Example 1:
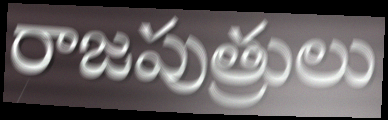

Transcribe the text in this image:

రాజపుత్రులు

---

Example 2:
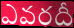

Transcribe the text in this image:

ఎవరదీ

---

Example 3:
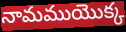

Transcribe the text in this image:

నామముయొక్క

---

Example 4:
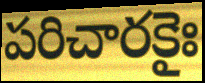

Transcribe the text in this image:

పరిచారకైః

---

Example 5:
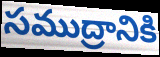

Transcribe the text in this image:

సముద్రానికి